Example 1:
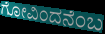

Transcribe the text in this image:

ಗೋವಿಂದನೆಂಬ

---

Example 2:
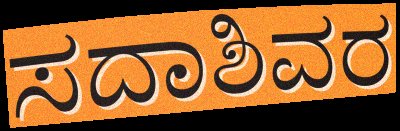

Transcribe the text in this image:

ಸದಾಶಿವರ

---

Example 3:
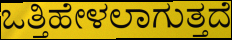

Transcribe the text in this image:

ಒತ್ತಿಹೇಳಲಾಗುತ್ತದೆ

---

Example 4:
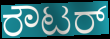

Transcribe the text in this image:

ರೌಟರ್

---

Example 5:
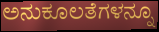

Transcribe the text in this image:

ಅನುಕೂಲತೆಗಳನ್ನೂ